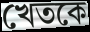
খেতকে